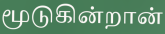
மூடுகின்றான்